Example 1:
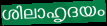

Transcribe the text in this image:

ശിലാഹൃദയം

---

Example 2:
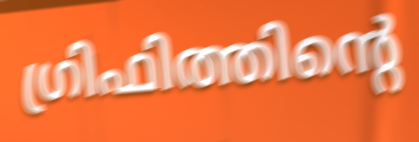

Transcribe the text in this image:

ഗ്രിഫിത്തിന്റെ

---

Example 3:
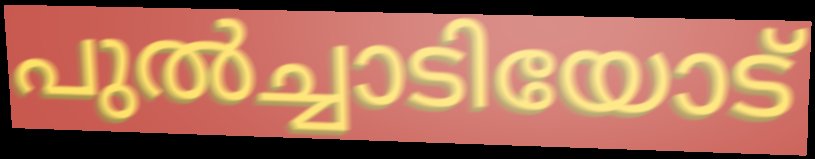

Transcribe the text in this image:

പുൽച്ചാടിയോട്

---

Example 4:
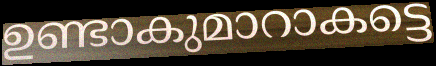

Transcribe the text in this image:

ഉണ്ടാകുമാറാകട്ടെ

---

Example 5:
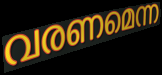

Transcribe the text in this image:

വരണമെന്ന